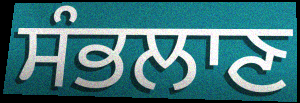
ਸੰਭਲਾਣ